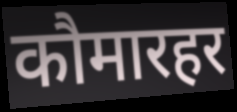
कौमारहर